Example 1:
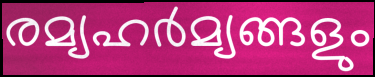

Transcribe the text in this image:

രമ്യഹർമ്യങ്ങളും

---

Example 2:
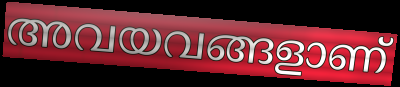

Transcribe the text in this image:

അവയവങ്ങളാണ്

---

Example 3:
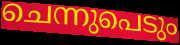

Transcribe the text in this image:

ചെന്നുപെടും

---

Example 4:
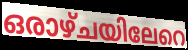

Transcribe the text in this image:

ഒരാഴ്ചയിലേറെ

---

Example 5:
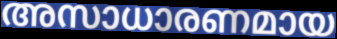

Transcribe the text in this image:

അസാധാരണമായ